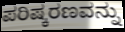
ಪರಿಷ್ಕರಣವನ್ನು